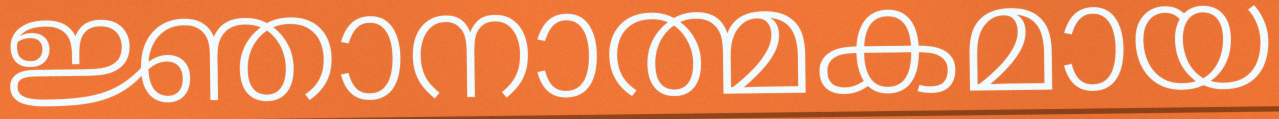
ജ്ഞാനാത്മകമായ